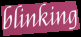
blinking